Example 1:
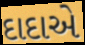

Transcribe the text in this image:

દાદાએ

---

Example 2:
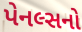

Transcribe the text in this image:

પેનલ્સનો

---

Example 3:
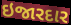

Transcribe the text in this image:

ઇજારદાર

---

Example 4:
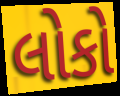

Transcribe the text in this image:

લોકો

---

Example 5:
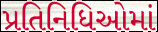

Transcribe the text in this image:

પ્રતિનિધિઓમાં